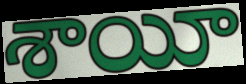
శాయీ